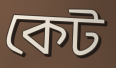
কেট